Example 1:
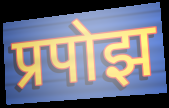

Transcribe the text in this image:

प्रपोझ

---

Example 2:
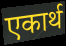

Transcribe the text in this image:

एकार्थ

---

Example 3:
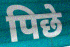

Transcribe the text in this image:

पिछे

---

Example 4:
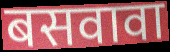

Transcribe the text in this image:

बसवावा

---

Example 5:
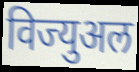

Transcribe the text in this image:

विज्युअल